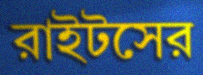
রাইটসের